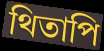
থিতাপি